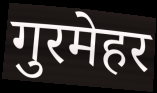
गुरमेहर